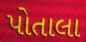
પોતાલા